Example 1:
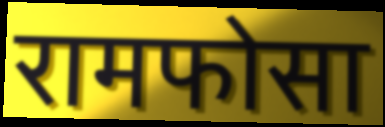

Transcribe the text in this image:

रामफोसा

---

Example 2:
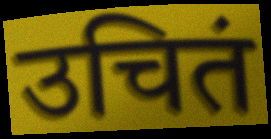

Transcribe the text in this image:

उचितं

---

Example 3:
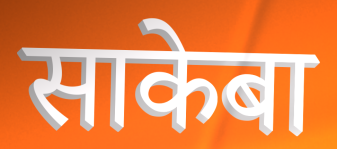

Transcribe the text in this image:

साकेबा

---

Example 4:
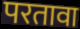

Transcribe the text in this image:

परतावा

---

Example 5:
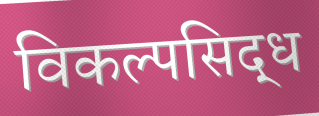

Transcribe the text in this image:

विकल्पसिद्ध